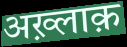
अख़्लाक़